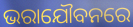
ଭରାଯୌବନରେ